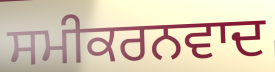
ਸਮੀਕਰਨਵਾਦ